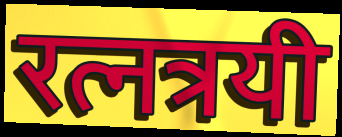
रत्नत्रयी